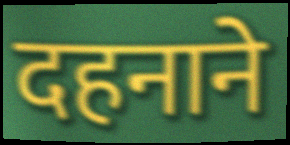
दहनाने